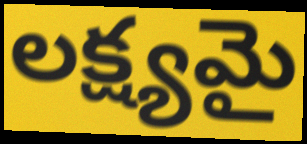
లక్ష్యమై